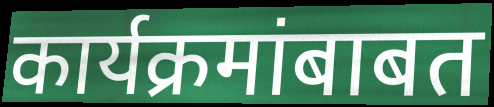
कार्यक्रमांबाबत